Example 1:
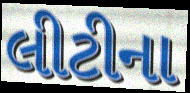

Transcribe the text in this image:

લીટીના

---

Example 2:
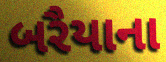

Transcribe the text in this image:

બરૈયાના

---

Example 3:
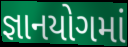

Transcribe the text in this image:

જ્ઞાનયોગમાં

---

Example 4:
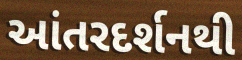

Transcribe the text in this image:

આંતરદર્શનથી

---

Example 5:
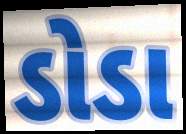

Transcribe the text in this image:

ડોડા